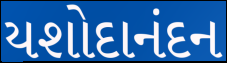
યશોદાનંદન